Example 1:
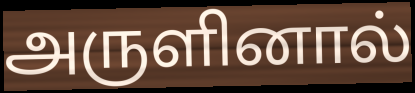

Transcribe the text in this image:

அருளினால்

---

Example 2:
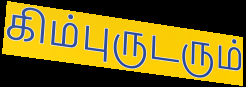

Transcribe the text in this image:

கிம்புருடரும்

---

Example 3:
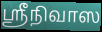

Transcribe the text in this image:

ஸ்ரீநிவாஸ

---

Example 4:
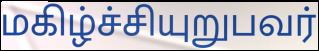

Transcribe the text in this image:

மகிழ்ச்சியுறுபவர்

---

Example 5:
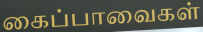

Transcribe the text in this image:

கைப்பாவைகள்